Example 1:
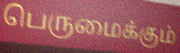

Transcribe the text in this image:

பெருமைக்கும்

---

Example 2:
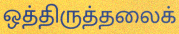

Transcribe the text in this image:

ஒத்திருத்தலைக்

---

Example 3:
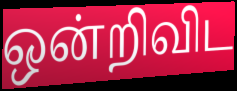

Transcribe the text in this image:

ஒன்றிவிட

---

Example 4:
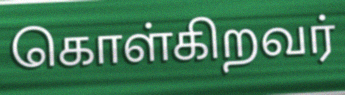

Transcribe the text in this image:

கொள்கிறவர்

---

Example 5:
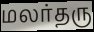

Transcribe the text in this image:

மலர்தரு